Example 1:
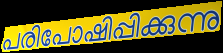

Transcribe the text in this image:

പരിപോഷിപ്പിക്കുന്നു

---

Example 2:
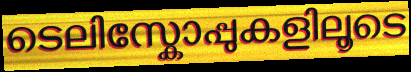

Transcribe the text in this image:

ടെലിസ്കോപ്പുകളിലൂടെ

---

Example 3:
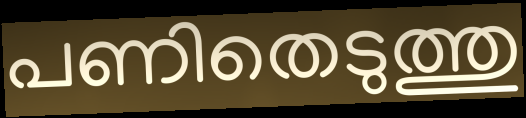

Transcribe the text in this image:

പണിതെടുത്തു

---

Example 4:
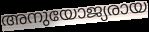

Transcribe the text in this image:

അനുയോജ്യരായ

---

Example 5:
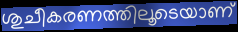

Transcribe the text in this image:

ശുചീകരണത്തിലൂടെയാണ്